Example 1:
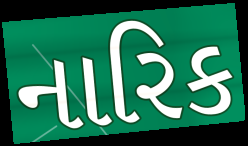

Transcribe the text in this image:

નારિક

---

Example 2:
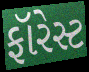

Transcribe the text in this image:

ફૉરેસ્ટ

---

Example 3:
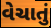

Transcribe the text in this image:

વેચાતું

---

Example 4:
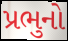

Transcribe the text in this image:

પ્રભુનો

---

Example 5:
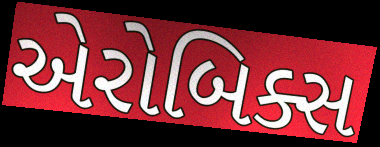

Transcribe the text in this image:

એરોબિક્સ